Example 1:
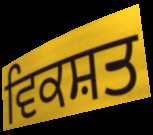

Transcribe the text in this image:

ਵਿਕਸ਼ਤ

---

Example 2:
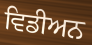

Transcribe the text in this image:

ਵਿਡੀਅਨ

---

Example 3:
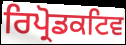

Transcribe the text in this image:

ਰਿਪ੍ਰੋਡਕਟਿਵ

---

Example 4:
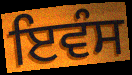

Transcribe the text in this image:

ਇਵੰਸ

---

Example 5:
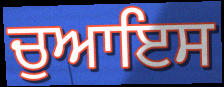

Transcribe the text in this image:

ਚੁਆਇਸ